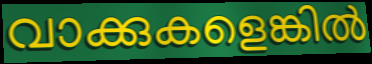
വാക്കുകളെങ്കിൽ